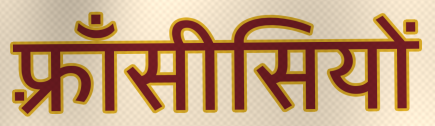
फ़्राँसीसियों